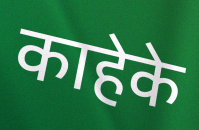
काहेके